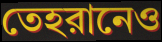
তেহরানেও